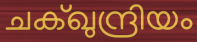
ചക്ഖുന്ദ്രിയം